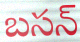
బసన్